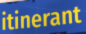
itinerant